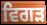
ਵਿਗੜ